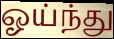
ஓய்ந்து